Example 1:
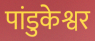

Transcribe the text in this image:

पांडुकेश्वर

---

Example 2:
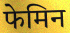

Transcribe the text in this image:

फेमिन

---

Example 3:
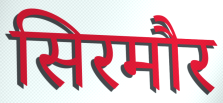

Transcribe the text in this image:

सिरमौर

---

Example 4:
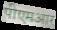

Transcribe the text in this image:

पीएमआर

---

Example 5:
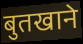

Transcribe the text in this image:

बुतखाने